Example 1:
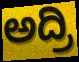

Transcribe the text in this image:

ಅದ್ರಿ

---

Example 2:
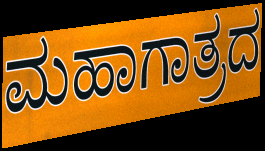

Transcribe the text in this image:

ಮಹಾಗಾತ್ರದ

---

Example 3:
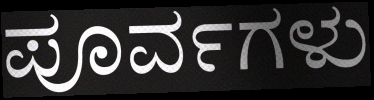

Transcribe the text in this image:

ಪೂರ್ವಗಳು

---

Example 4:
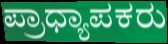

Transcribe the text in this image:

ಪ್ರಾಧ್ಯಾಪಕರು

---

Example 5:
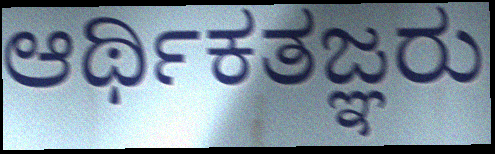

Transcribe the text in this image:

ಆರ್ಥಿಕತಜ್ಞರು